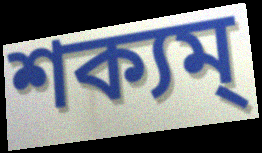
শক্যম্